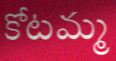
కోటమ్మ